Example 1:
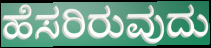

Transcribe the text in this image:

ಹೆಸರಿರುವುದು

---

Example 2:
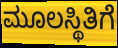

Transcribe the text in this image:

ಮೂಲಸ್ಥಿತಿಗೆ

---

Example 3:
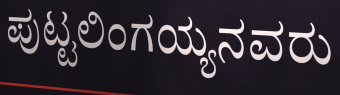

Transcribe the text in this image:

ಪುಟ್ಟಲಿಂಗಯ್ಯನವರು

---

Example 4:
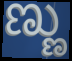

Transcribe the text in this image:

ಣ್ಣು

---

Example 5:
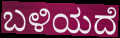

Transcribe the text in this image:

ಬಳಿಯದೆ